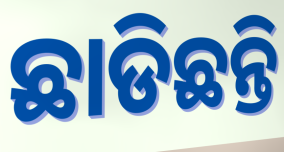
ଛାଡିଛନ୍ତି